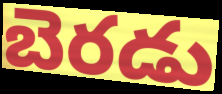
బెరడు